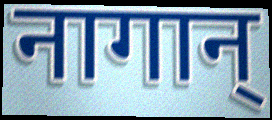
नागान्